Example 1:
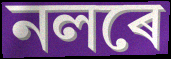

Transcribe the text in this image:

নলৰে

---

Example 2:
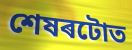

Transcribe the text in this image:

শেষৰটোত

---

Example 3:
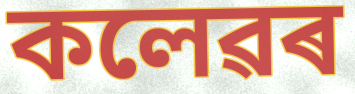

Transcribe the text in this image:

কলেৱৰ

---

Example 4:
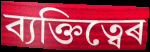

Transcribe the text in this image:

ব্যক্তিত্বেৰ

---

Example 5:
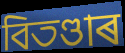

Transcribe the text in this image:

বিতণ্ডাৰ